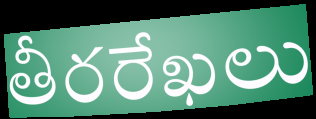
తీరరేఖలు